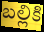
బల్లికి